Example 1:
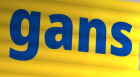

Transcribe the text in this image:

gans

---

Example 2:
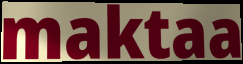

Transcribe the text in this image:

maktaa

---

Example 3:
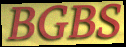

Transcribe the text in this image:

BGBS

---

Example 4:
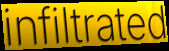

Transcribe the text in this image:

infiltrated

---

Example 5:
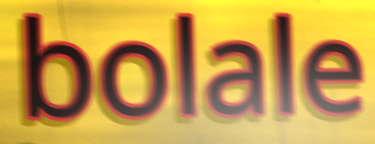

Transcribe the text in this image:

bolale